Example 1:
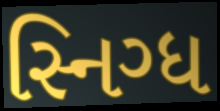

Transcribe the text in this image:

સ્નિગ્ધ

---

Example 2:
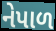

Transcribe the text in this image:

નેપાળ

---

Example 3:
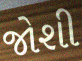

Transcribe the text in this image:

જોશી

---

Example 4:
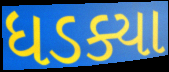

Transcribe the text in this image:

ધડક્યા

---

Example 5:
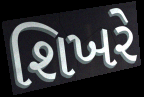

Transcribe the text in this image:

શિખરે